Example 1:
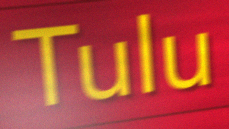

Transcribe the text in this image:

Tulu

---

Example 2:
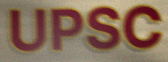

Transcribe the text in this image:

UPSC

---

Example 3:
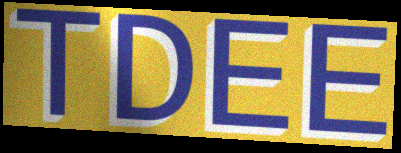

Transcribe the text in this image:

TDEE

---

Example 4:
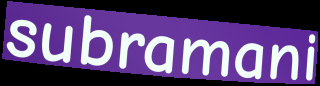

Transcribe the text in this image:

subramani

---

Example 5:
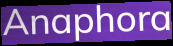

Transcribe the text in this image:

Anaphora